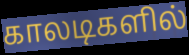
காலடிகளில்